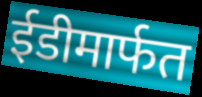
ईडीमार्फत